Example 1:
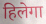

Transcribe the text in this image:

हिलेगा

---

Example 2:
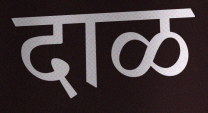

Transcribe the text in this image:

दाळ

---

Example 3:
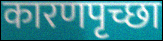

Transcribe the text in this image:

कारणपृच्छा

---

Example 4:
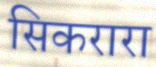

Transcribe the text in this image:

सिकरारा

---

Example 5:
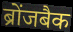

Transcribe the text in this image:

ब्रोंजबैक